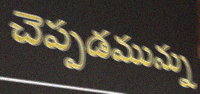
చెప్పడమున్ను